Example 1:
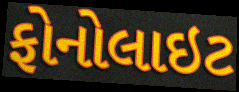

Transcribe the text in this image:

ફોનોલાઇટ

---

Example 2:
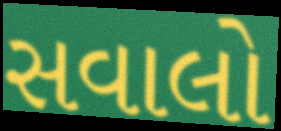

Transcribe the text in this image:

સવાલો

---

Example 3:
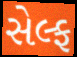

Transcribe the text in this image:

સેલ્ફ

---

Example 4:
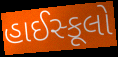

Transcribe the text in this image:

હાઈસ્કૂલો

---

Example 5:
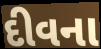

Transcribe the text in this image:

દીવના